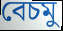
বেচমু